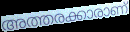
അത്തരക്കാരാണ്